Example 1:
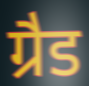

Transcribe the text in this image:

ग्रैड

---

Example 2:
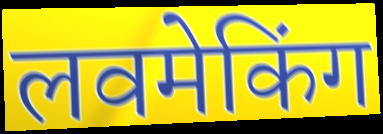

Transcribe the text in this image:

लवमेकिंग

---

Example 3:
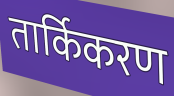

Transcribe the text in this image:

तार्किकरण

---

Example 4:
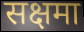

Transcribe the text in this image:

सक्षमा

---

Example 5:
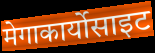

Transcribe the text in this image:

मेगाकार्योसाइट